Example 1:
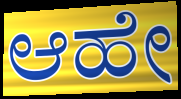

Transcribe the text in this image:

ಆಹೇ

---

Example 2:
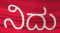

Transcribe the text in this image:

ನಿದು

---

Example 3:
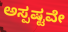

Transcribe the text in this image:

ಅಸ್ಪಷ್ಟವೇ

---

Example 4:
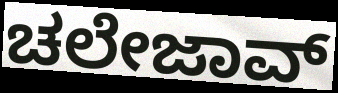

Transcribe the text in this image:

ಚಲೇಜಾವ್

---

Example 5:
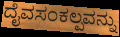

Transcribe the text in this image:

ದೈವಸಂಕಲ್ಪವನ್ನು